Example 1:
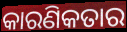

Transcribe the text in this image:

କାରଣିକତାର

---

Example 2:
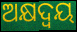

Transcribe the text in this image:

ଅକ୍ଷଦ୍ବୟ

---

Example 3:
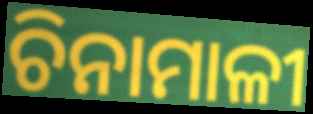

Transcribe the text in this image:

ଚିନାମାଳୀ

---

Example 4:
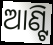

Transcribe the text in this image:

ଆଣ୍ଟି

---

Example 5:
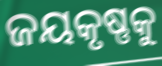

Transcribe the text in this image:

ଜୟକୃଷ୍ଣକୁ